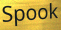
Spook